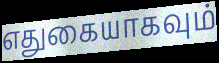
எதுகையாகவும்